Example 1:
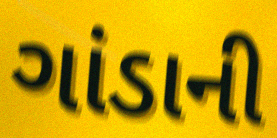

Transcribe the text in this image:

ગાંડાની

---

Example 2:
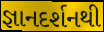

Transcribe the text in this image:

જ્ઞાનદર્શનથી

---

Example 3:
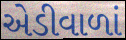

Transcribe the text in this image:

એડીવાળાં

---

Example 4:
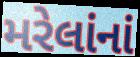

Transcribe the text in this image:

મરેલાંનાં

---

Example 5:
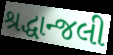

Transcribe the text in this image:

શ્રદ્ધાન્જલી